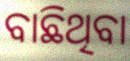
ବାଛିଥିବା